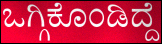
ಒಗ್ಗಿಕೊಂಡಿದ್ದೆ